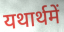
यथार्थमें